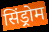
सिंड्रोम